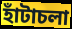
হাঁটাচলা